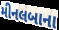
મીનલબાના